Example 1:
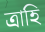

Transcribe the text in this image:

ত্রাহি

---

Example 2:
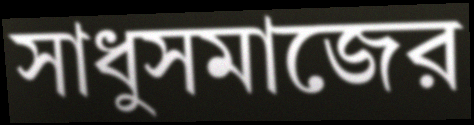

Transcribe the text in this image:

সাধুসমাজের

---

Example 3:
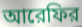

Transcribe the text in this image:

আরেফির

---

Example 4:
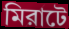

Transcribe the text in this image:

মিরাটে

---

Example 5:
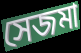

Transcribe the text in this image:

সেজমা